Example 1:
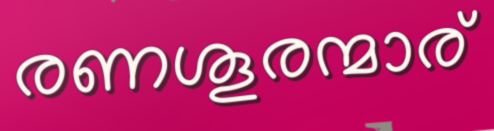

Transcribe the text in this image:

രണശൂരന്മാര്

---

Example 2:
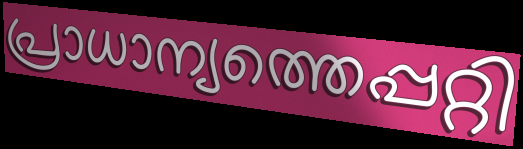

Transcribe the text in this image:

പ്രാധാന്യത്തെപ്പറ്റി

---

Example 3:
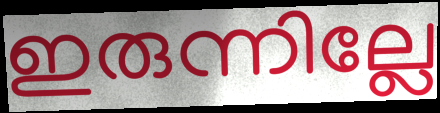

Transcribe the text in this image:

ഇരുന്നില്ലേ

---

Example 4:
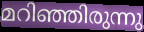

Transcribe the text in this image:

മറിഞ്ഞിരുന്നു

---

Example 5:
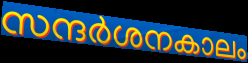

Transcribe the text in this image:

സന്ദർശനകാലം